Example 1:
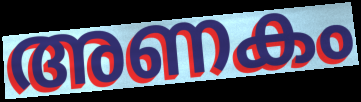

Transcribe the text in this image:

അണകം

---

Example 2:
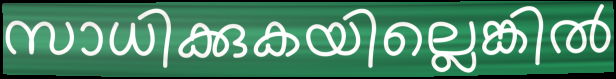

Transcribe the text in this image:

സാധിക്കുകയില്ലെങ്കിൽ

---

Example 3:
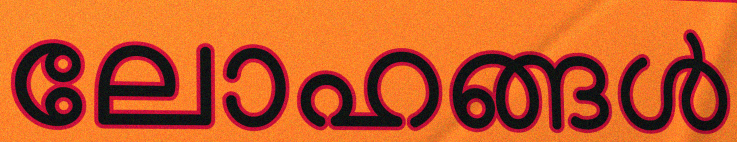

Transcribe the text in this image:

ലോഹങ്ങൾ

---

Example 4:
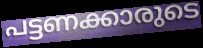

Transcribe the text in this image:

പട്ടണക്കാരുടെ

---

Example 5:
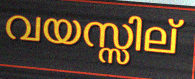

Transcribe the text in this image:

വയസ്സില്